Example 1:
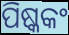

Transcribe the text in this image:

ପିଷ୍କକଂ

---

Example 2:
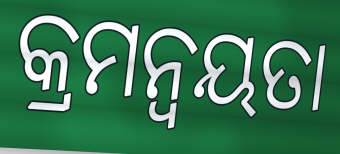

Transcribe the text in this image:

କ୍ରମନ୍ବୟତା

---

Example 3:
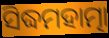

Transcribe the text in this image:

ସିଦ୍ଧମହାତ୍ମା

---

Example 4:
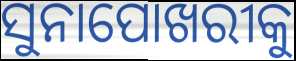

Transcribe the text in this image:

ସୁନାପୋଖରୀକୁ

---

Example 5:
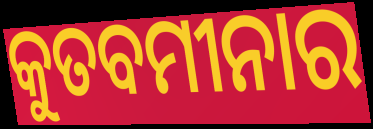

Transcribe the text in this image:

କୁତବମୀନାର